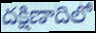
దక్షిణాదిలో